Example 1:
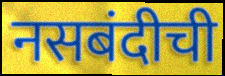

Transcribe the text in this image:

नसबंदीची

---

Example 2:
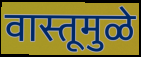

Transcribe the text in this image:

वास्तूमुळे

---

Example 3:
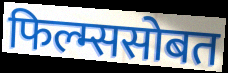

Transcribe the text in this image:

फिल्म्ससोबत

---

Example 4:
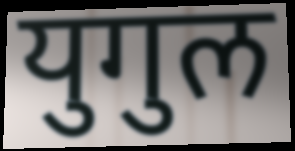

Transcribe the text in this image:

युगुल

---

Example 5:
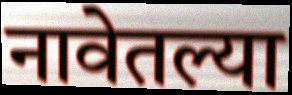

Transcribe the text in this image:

नावेतल्या